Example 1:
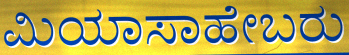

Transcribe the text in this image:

ಮಿಯಾಸಾಹೇಬರು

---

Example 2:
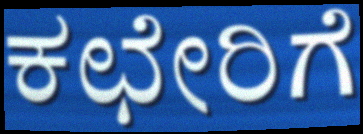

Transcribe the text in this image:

ಕಛೇರಿಗೆ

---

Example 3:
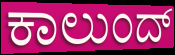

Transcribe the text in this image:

ಕಾಲುಂದ್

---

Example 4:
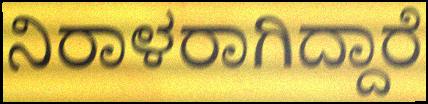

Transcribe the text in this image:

ನಿರಾಳರಾಗಿದ್ದಾರೆ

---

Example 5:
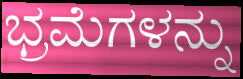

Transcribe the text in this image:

ಭ್ರಮೆಗಳನ್ನು